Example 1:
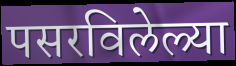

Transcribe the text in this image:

पसरविलेल्या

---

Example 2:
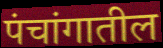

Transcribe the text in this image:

पंचांगातील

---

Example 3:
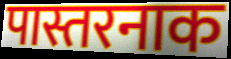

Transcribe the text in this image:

पास्तरनाक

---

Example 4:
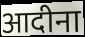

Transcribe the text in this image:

आदीना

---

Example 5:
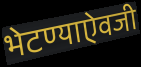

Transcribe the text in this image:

भेटण्याऐवजी